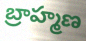
బ్రాహ్మణ